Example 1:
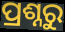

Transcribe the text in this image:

ପ୍ରଶ୍ନରୁ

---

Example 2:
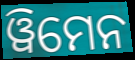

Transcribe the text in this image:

ୱିମେନ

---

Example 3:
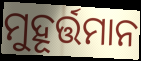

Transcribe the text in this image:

ମୁହୂର୍ତ୍ତମାନ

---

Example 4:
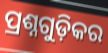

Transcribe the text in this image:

ପ୍ରଶ୍ନଗୁଡ଼ିକର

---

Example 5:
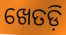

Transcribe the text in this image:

ଖେତଡ଼ି